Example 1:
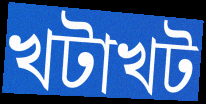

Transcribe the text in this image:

খটাখট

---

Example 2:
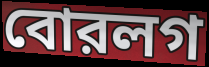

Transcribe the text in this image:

বোরলগ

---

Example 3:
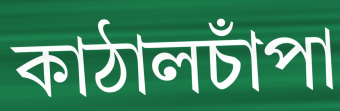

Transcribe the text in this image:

কাঠালচাঁপা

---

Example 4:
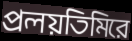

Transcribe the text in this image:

প্রলয়তিমিরে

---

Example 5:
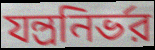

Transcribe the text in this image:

যন্ত্রনির্ভর